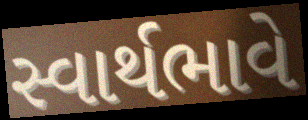
સ્વાર્થભાવે